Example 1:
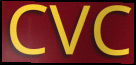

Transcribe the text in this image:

CVC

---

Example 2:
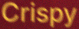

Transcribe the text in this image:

Crispy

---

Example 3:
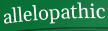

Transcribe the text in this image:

allelopathic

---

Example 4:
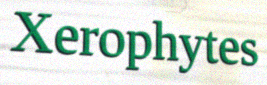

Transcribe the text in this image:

Xerophytes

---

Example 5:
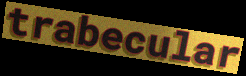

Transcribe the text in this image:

trabecular